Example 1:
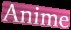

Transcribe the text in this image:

Anime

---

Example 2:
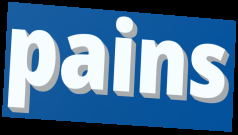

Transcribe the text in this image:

pains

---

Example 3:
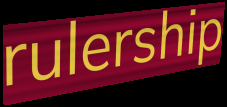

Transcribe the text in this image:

rulership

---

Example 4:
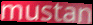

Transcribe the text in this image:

mustan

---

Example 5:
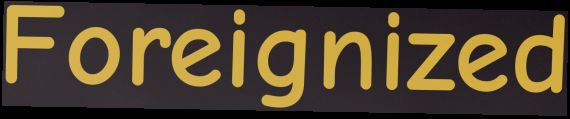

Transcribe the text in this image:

Foreignized